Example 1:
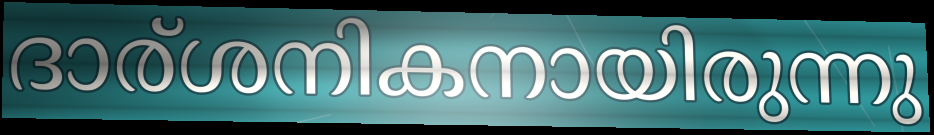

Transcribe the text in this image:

ദാര്ശനികനായിരുന്നു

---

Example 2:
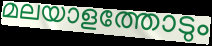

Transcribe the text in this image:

മലയാളത്തോടും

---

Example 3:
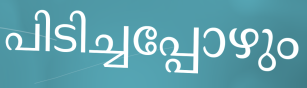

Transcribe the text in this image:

പിടിച്ചപ്പോഴും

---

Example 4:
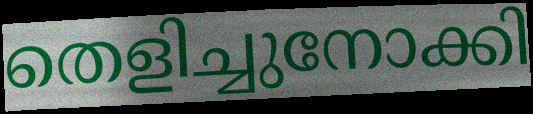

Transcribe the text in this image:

തെളിച്ചുനോക്കി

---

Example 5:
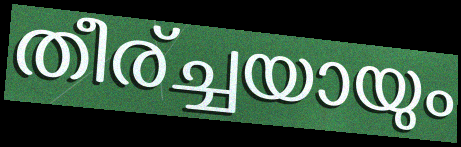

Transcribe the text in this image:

തീര്ച്ചയായും